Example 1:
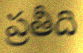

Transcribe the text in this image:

ప్రతీది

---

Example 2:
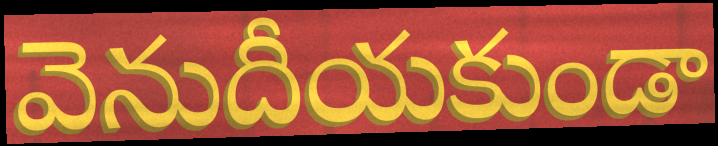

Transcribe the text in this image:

వెనుదీయకుండా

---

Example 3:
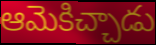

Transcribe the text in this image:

ఆమెకిచ్చాడు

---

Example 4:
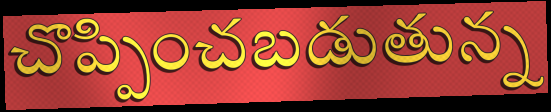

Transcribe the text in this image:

చొప్పించబడుతున్న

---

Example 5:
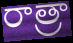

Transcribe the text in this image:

రాత్రా